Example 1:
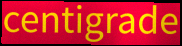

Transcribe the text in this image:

centigrade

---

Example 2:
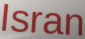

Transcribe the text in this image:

Isran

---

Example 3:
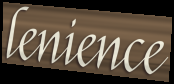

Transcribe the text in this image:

lenience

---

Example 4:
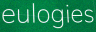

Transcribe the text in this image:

eulogies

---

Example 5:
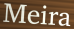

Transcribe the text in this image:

Meira